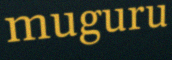
muguru